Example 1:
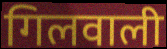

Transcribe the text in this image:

गिलवाली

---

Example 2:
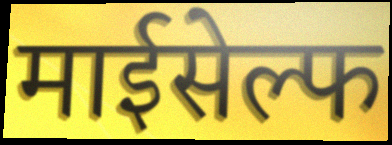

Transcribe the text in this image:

माईसेल्फ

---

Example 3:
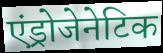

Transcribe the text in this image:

एंड्रोजेनेटिक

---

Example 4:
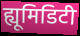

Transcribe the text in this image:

ह्यूमिडिटी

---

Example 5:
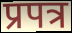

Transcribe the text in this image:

प्रपत्र